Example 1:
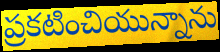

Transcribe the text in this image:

ప్రకటించియున్నాను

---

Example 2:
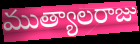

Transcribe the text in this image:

ముత్యాలరాజు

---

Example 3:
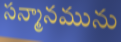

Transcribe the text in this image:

సన్మానమును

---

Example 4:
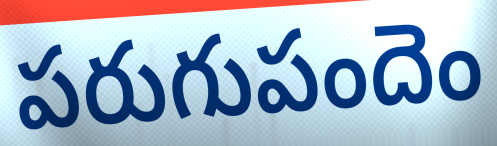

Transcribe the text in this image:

పరుగుపందెం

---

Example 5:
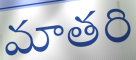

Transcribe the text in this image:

మాతరి